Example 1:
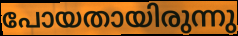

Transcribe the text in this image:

പോയതായിരുന്നു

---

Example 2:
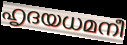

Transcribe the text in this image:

ഹൃദയധമനീ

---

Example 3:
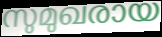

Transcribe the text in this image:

സുമുഖരായ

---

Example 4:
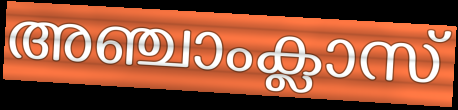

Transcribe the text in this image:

അഞ്ചാംക്ലാസ്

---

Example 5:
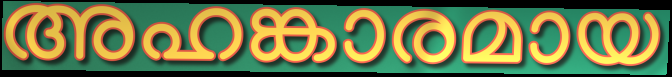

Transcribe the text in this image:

അഹങ്കാരമായ